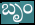
బృం